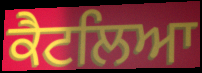
ਕੈਟਲਿਆ